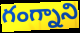
గంగ్నాని